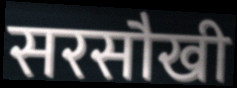
सरसौखी